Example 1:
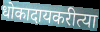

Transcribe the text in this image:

धोकादायकरीत्या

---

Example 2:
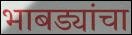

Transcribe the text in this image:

भाबड्यांचा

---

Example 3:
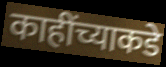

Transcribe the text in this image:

काहींच्याकडे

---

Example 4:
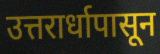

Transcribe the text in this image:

उत्तरार्धापासून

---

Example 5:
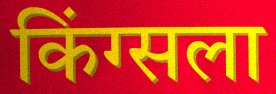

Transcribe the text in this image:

किंग्सला